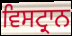
ਵਿਸਟ੍ਰਾਨ